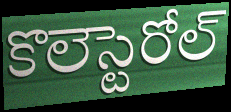
కొలెస్టెరోల్